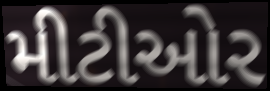
મીટીઓર